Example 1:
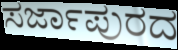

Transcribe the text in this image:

ಸರ್ಜಾಪುರದ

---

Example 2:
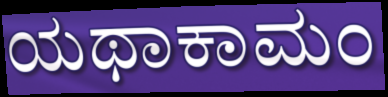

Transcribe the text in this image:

ಯಥಾಕಾಮಂ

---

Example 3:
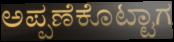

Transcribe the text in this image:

ಅಪ್ಪಣೆಕೊಟ್ಟಾಗ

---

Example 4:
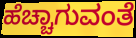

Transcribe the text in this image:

ಹೆಚ್ಚಾಗುವಂತೆ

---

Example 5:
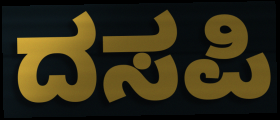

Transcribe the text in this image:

ದಸಪಿ